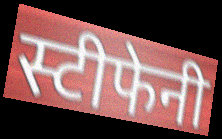
स्टीफेनी